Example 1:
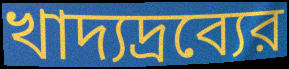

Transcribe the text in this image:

খাদ্যদ্রব্যের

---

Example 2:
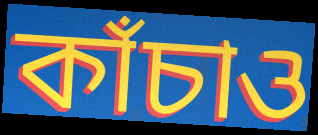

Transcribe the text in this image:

কাঁচাও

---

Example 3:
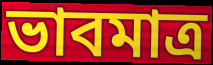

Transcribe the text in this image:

ভাবমাত্র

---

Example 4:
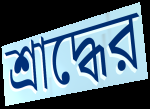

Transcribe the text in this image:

শ্রাদ্ধের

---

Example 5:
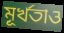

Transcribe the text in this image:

মূর্খতাও